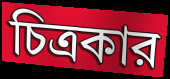
চিত্রকার